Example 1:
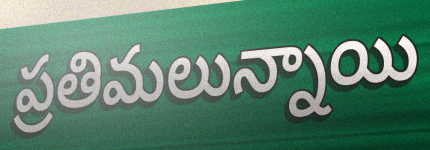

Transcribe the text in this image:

ప్రతిమలున్నాయి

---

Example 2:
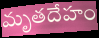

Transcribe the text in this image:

మృతదేహం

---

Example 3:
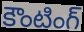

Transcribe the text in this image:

కౌంటింగ్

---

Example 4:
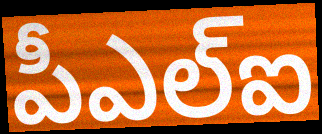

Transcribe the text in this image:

పీఎల్ఐ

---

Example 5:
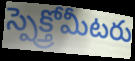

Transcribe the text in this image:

స్పెక్త్రోమీటరు